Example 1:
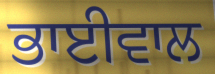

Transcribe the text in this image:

ਭਾਈਵਾਲ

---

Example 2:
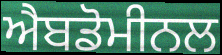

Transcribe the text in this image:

ਐਬਡੋਮੀਨਲ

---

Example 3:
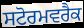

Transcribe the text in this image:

ਸਟੋਰਮਵਰੈਕ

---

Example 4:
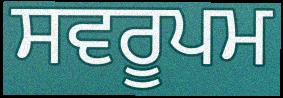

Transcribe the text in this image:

ਸਵਰੂਪਮ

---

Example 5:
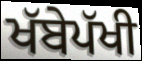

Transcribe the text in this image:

ਖੱਬੇਪੱਖੀ